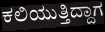
ಕಲಿಯುತ್ತಿದ್ದಾಗ